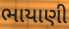
ભાયાણી